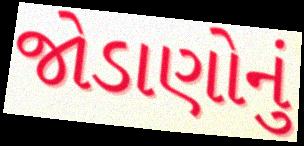
જોડાણોનું